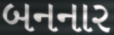
બનનાર